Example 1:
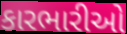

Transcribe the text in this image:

કારભારીઓ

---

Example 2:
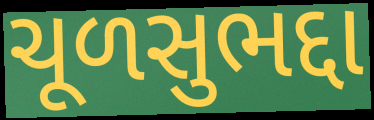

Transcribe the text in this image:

ચૂળસુભદ્દા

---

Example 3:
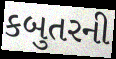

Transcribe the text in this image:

કબુતરની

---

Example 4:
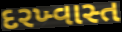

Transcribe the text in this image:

દરખ્વાસ્ત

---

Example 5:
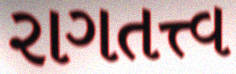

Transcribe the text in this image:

રાગતત્ત્વ